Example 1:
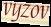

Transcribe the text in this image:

vyzov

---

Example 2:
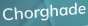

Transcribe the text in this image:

Chorghade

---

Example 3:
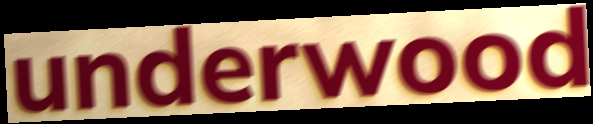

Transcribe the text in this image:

underwood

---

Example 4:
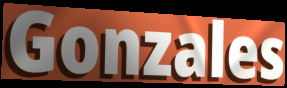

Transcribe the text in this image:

Gonzales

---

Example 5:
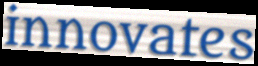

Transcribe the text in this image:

innovates